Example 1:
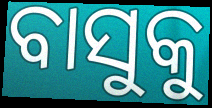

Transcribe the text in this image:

ବାସୁକୁ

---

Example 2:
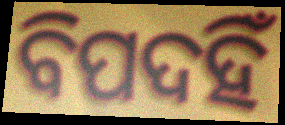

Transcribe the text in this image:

ବିପଦହିଁ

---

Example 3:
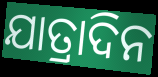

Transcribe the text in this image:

ଯାତ୍ରାଦିନ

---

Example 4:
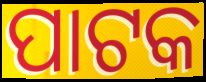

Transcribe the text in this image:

ପାଟକ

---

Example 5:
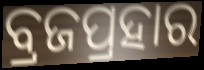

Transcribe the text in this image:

ବ୍ରଜପ୍ରହାର